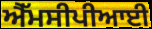
ਐੱਮਸੀਪੀਆਈ